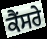
ਕੈਂਸਰੇ